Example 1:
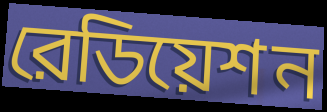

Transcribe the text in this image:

রেডিয়েশন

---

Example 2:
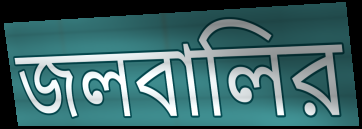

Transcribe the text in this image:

জলবালির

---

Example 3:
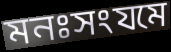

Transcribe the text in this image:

মনঃসংযমে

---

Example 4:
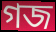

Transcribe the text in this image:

গজ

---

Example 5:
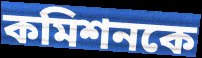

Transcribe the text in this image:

কমিশনকে